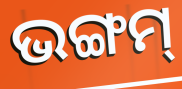
ଭଙ୍ଗମ୍